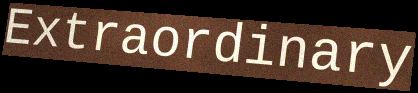
Extraordinary